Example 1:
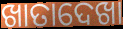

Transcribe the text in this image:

ଖାତାଦେଖା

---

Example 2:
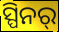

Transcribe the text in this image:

ସ୍ପିନର୍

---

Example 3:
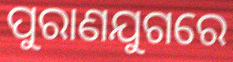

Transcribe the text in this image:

ପୁରାଣଯୁଗରେ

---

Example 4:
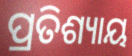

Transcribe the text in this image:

ପ୍ରତିଶ୍ୟାୟ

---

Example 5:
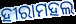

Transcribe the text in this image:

ହୀରାମହଲ